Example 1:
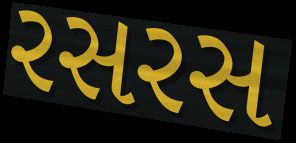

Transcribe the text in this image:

રસરસ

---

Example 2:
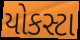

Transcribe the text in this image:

યોકસ્ટા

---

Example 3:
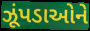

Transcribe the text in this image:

ઝૂંપડાઓને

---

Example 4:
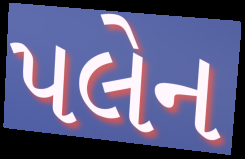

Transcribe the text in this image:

પલેન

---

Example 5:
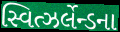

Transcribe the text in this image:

સ્વિત્ઝર્લેન્ડના